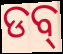
ଡବ୍